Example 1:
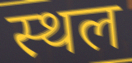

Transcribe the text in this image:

स्थल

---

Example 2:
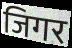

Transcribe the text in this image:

जिगर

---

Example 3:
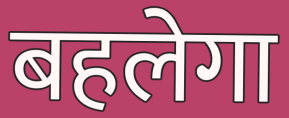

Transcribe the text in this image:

बहलेगा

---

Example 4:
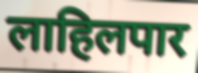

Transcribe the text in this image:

लाहिलपार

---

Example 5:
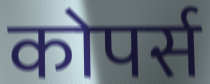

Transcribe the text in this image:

कोपर्स